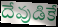
దేవుడికే